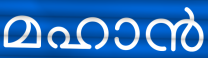
മഹാൻ